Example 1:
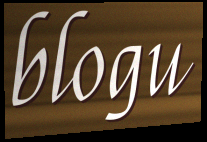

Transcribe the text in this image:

blogu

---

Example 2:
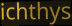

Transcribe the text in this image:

ichthys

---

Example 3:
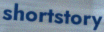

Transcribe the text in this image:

shortstory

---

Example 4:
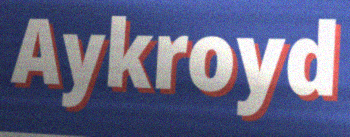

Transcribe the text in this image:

Aykroyd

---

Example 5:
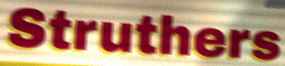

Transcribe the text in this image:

Struthers